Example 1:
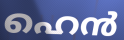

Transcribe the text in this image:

ഹെൻ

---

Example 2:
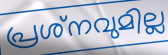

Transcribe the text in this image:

പ്രശ്‌നവുമില്ല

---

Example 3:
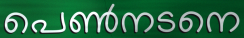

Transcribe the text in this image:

പെൺനടനെ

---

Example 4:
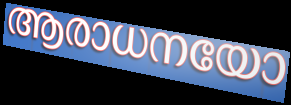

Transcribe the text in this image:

ആരാധനയോ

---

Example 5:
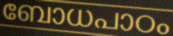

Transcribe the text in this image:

ബോധപാഠം